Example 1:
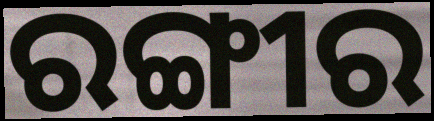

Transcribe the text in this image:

ରଙ୍ଗୀର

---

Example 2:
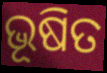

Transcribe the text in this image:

ଭୂଷିତ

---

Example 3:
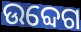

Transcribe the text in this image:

ଉବ୍ଦେଗ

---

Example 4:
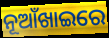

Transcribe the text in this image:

ନୂଆଁଖାଇରେ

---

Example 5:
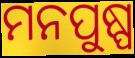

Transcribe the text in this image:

ମନପୁଷ୍ପ